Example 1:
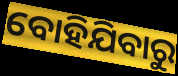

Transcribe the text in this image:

ବୋହିଯିବାରୁ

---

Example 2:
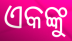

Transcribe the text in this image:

ଏକଙ୍କୁ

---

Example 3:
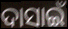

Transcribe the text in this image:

ଦାସାଇଁ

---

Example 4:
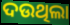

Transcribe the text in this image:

ଦଉଥିଲା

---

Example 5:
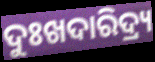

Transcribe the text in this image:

ଦୁଃଖଦାରିଦ୍ର୍ୟ